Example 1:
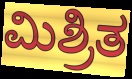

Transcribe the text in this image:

ಮಿಶ್ರಿತ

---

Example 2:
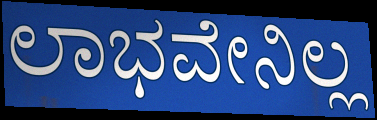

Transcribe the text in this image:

ಲಾಭವೇನಿಲ್ಲ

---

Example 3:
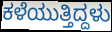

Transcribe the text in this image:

ಕಳೆಯುತ್ತಿದ್ದಳು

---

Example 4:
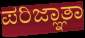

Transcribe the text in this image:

ಪರಿಜ್ಞಾತಾ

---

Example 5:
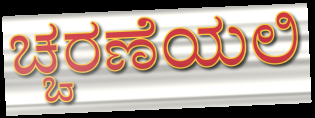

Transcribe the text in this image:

ಚ್ಚರಣೆಯಲಿ